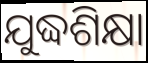
ଯୁଦ୍ଧଶିକ୍ଷା